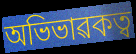
অভিভাৱকত্ব